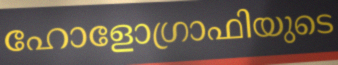
ഹോളോഗ്രാഫിയുടെ